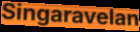
Singaravelan